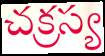
చక్రస్య